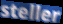
steller